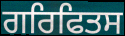
ਗਰਿਫਿਤਸ